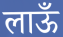
लाऊँ